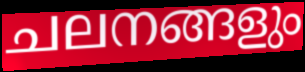
ചലനങ്ങളും